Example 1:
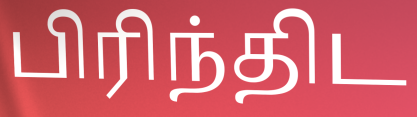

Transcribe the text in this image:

பிரிந்திட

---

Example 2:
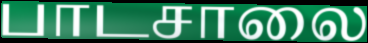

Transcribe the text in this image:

பாடசாலை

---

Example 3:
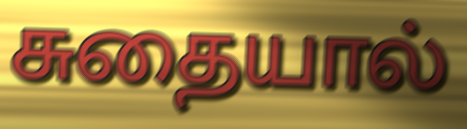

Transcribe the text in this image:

சுதையால்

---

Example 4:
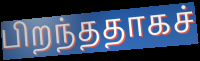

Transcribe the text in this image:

பிறந்ததாகச்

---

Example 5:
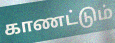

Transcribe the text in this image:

காணட்டும்